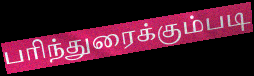
பரிந்துரைக்கும்படி